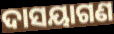
ଦାସୟାଗଣ